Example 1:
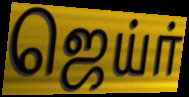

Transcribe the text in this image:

ஜெய்ர்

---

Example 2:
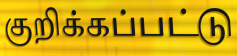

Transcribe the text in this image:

குறிக்கப்பட்டு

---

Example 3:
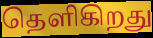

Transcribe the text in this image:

தெளிகிறது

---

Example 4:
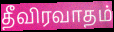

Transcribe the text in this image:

தீவிரவாதம்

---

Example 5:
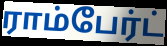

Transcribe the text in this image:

ராம்பேர்ட்